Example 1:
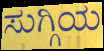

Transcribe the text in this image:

ಸುಗ್ಗಿಯ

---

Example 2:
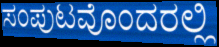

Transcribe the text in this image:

ಸಂಪುಟವೊಂದರಲ್ಲಿ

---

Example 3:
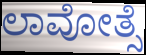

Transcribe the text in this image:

ಲಾವೋತ್ಸೆ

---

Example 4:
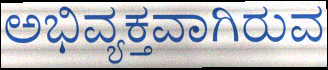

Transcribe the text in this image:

ಅಭಿವ್ಯಕ್ತವಾಗಿರುವ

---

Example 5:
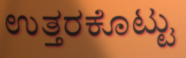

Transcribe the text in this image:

ಉತ್ತರಕೊಟ್ಟು